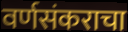
वर्णसंकराचा